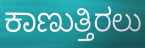
ಕಾಣುತ್ತಿರಲು